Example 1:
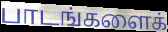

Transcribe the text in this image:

பாடங்களைக்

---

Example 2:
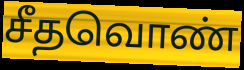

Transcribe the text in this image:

சீதவொண்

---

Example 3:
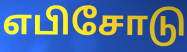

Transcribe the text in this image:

எபிசோடு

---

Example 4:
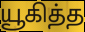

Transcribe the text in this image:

யூகித்த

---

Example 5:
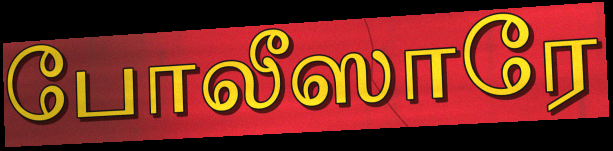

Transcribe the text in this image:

போலீஸாரே